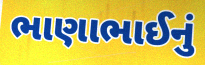
ભાણાભાઈનું